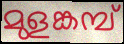
മുളങ്കമ്പ്